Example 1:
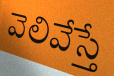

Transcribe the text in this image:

వెలివేస్తే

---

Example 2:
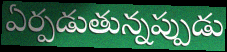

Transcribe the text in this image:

ఏర్పడుతున్నప్పుడు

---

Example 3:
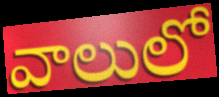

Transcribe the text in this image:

వాలులో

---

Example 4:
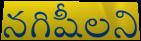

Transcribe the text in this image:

నగిషీలని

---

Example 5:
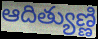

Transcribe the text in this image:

ఆదిత్యుణ్ణి